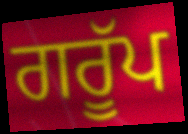
ਗਰੂੱਪ